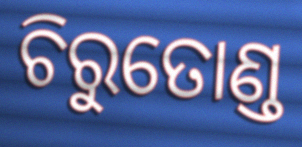
ଚିରୁତୋଣ୍ଡ